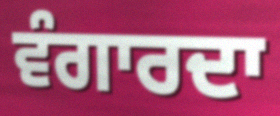
ਵੰਗਾਰਦਾ